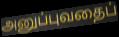
அனுப்புவதைப்